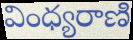
వింధ్యరాణి